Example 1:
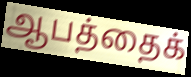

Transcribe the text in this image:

ஆபத்தைக்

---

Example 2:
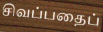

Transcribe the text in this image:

சிவப்பதைப்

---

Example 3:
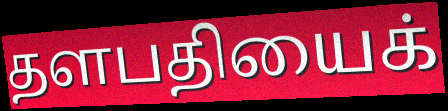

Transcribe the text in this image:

தளபதியைக்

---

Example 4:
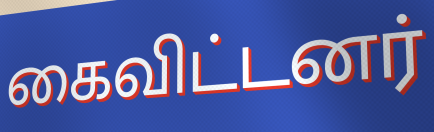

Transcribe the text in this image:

கைவிட்டனர்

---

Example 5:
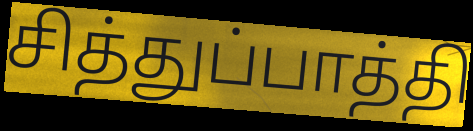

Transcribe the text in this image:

சித்துப்பாத்தி